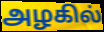
அழகில்